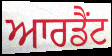
ਆਰਡੈਂਟ